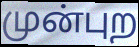
முன்புற